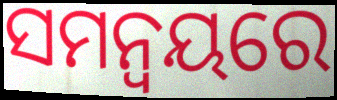
ସମନ୍ବୟରେ